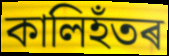
কালিহঁতৰ